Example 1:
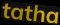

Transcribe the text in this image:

tatha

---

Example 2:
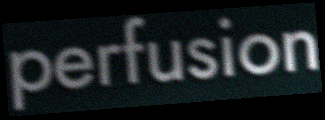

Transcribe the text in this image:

perfusion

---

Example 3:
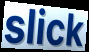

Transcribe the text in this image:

slick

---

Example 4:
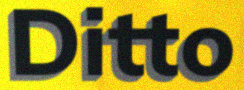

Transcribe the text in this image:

Ditto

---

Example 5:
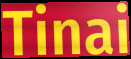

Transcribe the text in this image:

Tinai